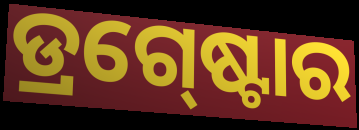
ଡ୍ରଗ୍‍ଷ୍ଟୋର